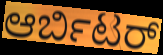
ಆರ್ಬಿಟರ್